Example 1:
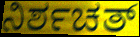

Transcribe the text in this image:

ನಿರ್ಶಚತ್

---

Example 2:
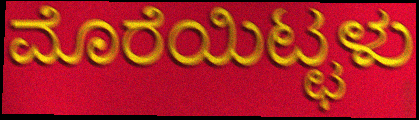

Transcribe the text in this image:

ಮೊರೆಯಿಟ್ಟಳು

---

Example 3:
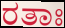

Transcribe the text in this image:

ರತಾಃ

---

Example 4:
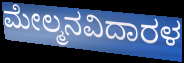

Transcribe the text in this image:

ಮೇಲ್ಮನವಿದಾರಳ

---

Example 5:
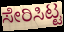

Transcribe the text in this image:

ಸೇರಿಸಿಟ್ಟ